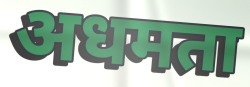
अधमता